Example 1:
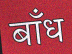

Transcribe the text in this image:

बाँध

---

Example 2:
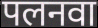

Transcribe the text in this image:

पलनवा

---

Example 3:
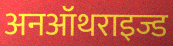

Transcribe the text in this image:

अनऑथराइज्ड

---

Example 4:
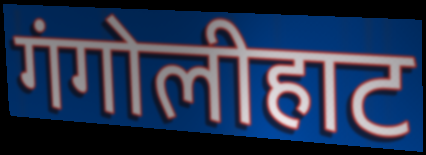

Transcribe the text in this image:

गंगोलीहाट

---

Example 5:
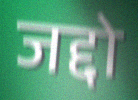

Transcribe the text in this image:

जद्दो